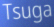
Tsuga